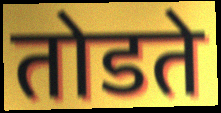
तोडते